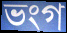
ভংগ